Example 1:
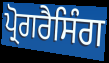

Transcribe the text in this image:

ਪ੍ਰੋਗਰੈਸਿੰਗ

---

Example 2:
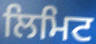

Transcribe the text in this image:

ਲਿਮਿਟ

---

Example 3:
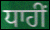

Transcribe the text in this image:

ਧਾਹੀਂ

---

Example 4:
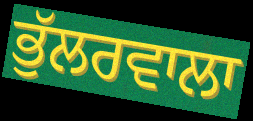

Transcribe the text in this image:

ਭੁੱਲਰਵਾਲਾ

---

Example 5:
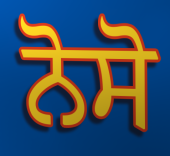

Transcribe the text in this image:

ਨੋਸੋ